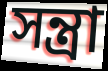
সন্ত্রা